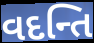
વદન્તિ